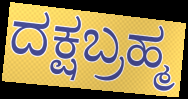
ದಕ್ಷಬ್ರಹ್ಮ